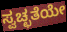
ಸ್ವಚ್ಛತೆಯೇ